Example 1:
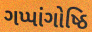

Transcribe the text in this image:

ગપ્પાંગોષ્ઠિ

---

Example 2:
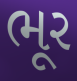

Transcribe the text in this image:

ભૂર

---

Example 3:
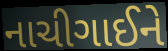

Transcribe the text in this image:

નાચીગાઈને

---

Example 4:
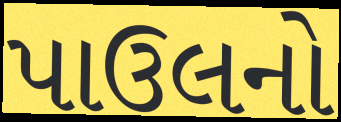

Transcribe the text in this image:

પાઉલનો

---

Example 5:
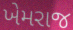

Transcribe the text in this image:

ખેમરાજ